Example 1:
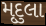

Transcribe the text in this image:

મૃદુલા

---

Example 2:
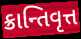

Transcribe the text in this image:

ક્રાન્તિવૃત્ત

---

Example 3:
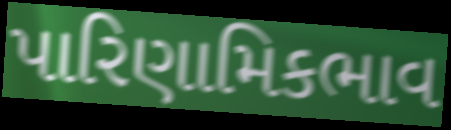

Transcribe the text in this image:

પારિણામિકભાવ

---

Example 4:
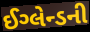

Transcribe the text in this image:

ઈગ્લેન્ડની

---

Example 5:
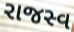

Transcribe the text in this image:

રાજસ્વ